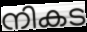
നികട